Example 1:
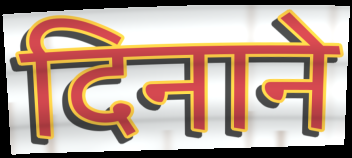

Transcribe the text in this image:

दिनाने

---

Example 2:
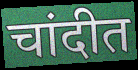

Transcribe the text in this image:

चांदीत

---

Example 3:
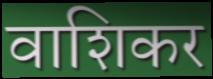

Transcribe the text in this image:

वाशिकर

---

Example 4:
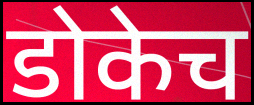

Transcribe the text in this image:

डोकेच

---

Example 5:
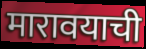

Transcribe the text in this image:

मारावयाची